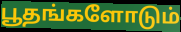
பூதங்களோடும்